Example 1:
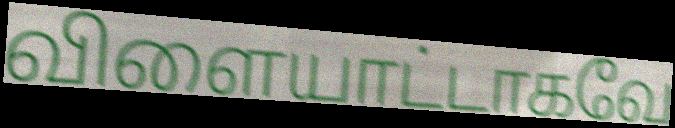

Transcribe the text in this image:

விளையாட்டாகவே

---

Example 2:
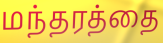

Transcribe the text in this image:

மந்தரத்தை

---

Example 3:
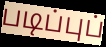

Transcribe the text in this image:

படிப்புப்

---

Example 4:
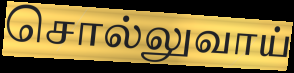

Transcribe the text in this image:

சொல்லுவாய்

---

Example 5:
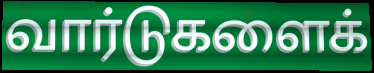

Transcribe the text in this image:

வார்டுகளைக்